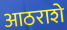
आठराशे